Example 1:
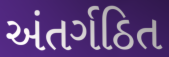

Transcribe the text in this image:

અંતર્ગઠિત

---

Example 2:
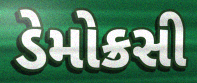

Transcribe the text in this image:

ડેમોક્રસી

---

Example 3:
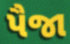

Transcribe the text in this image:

પૈજા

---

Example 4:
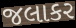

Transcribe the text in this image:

જલાકર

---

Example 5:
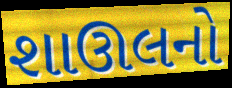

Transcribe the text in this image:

શાઊલનો